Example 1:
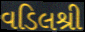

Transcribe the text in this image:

વડિલશ્રી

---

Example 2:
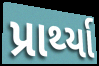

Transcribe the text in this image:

પ્રાર્થ્યા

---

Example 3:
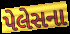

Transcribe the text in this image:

પેલેસના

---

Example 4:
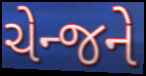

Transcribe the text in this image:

ચેન્જને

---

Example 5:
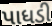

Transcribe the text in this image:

પાધડી